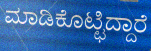
ಮಾಡಿಕೊಟ್ಟಿದ್ದಾರೆ